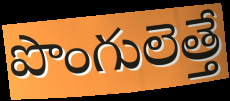
పొంగులెత్తే